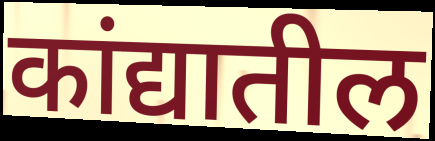
कांद्यातील